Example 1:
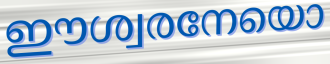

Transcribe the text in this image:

ഈശ്വരനേയൊ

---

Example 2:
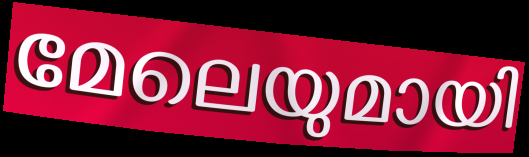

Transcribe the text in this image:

മേലെയുമായി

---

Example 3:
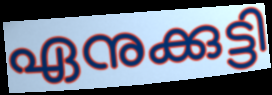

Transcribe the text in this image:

ഏനുക്കുട്ടി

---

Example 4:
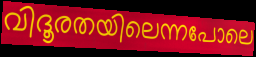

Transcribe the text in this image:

വിദൂരതയിലെന്നപോലെ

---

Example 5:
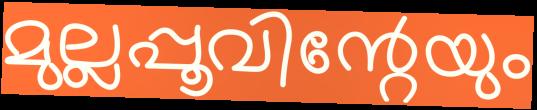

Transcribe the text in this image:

മുല്ലപ്പൂവിന്റേയും